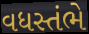
વધસ્તંભે